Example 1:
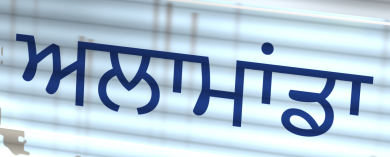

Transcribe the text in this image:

ਅਲਾਮਾਂਡਾ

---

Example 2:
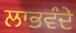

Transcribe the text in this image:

ਲਾਭਵੰਦੇ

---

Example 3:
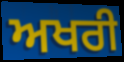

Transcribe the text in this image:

ਅਖਰੀ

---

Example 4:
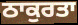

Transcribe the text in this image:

ਠਾਕੁਰਤਾ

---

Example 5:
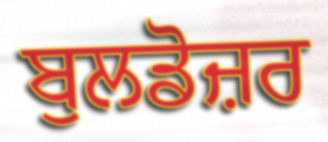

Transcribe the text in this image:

ਬੁਲਡੋਜ਼ਰ